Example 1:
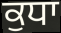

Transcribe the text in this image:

ਕੁਧਾ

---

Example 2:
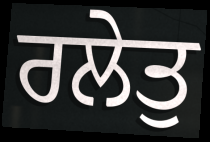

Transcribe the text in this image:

ਰਲੇਤੁ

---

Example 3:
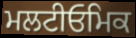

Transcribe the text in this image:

ਮਲਟੀਓਮਿਕ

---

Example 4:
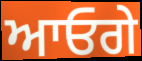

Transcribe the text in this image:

ਆਓਗੇ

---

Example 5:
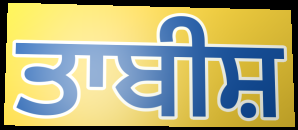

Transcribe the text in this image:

ਤਾਬੀਸ਼